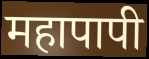
महापापी